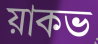
য়াকভ